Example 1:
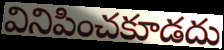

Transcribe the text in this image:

వినిపించకూడదు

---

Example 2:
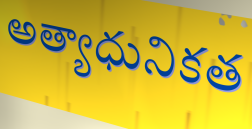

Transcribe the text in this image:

అత్యాధునికత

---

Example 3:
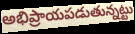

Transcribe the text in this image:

అభిప్రాయపడుతున్నట్టు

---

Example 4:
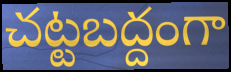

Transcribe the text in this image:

చట్టబద్దంగా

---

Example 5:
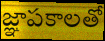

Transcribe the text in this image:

జ్ఞాపకాలతో